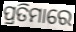
ପ୍ରତିମାରେ